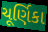
ચૂર્ણિકા